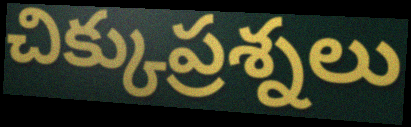
చిక్కుప్రశ్నలు